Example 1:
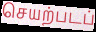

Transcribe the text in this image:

செயற்படப்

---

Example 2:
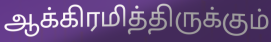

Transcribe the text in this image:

ஆக்கிரமித்திருக்கும்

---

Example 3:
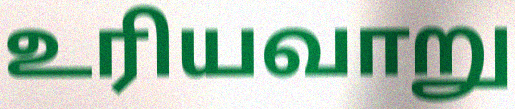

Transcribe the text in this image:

உரியவாறு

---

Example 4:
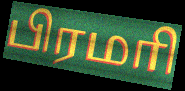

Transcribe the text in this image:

பிரமரி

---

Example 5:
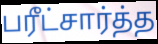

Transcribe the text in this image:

பரீட்சார்த்த